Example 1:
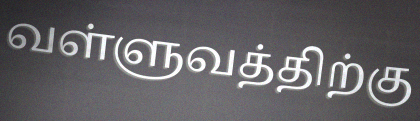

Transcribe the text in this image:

வள்ளுவத்திற்கு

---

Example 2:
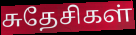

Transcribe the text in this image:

சுதேசிகள்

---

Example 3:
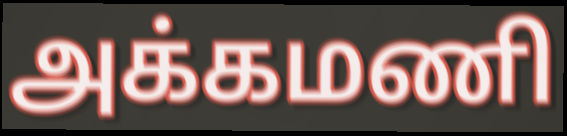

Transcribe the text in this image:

அக்கமணி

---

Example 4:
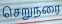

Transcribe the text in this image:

செறுநரை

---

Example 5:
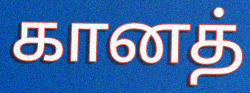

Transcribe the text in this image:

கானத்